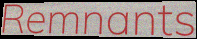
Remnants